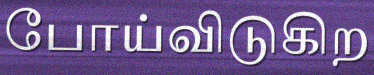
போய்விடுகிற